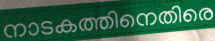
നാടകത്തിനെതിരെ